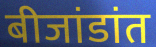
बीजांडांत